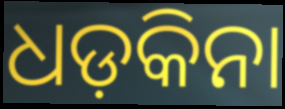
ଧଡ଼କିନା